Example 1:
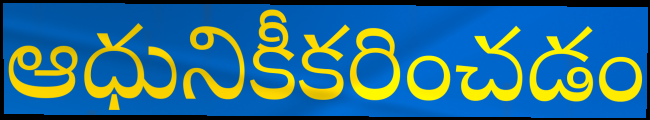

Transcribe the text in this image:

ఆధునికీకరించడం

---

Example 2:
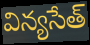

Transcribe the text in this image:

విన్యసేత్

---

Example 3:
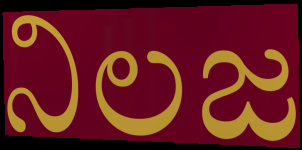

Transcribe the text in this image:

నిలజ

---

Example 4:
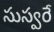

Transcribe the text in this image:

సుస్వరే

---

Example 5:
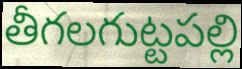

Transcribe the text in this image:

తీగలగుట్టపల్లి